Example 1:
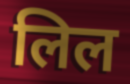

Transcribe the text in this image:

लिल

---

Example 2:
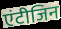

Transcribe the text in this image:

एंटीजिन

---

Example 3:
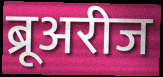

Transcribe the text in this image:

ब्रूअरीज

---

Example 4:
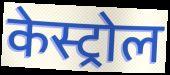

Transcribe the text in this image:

केस्ट्रोल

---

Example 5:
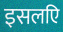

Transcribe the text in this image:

इसलएि